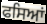
ਫਸਿਆਂ